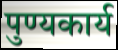
पुण्यकार्य